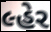
લ્હેર